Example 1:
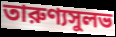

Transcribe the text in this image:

তারুণ্যসুলভ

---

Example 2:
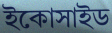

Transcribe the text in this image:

ইকোসাইড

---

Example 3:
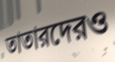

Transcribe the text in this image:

তাতারদেরও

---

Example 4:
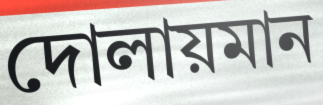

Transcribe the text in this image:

দোলায়মান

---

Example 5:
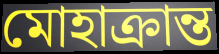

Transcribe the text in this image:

মোহাক্রান্ত